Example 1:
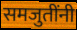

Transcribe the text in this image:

समजुतींनी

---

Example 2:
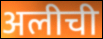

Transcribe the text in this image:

अलीची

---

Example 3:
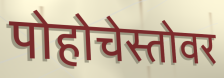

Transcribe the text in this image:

पोहोचेस्तोवर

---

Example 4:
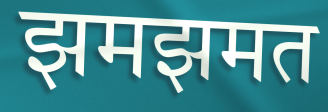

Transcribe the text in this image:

झमझमत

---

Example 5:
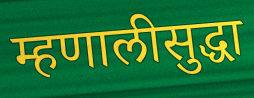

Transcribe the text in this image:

म्हणालीसुद्धा